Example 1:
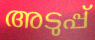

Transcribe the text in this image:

അടുപ്പ്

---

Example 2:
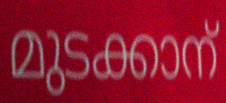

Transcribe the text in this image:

മുടക്കാന്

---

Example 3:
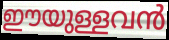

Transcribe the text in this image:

ഈയുള്ളവൻ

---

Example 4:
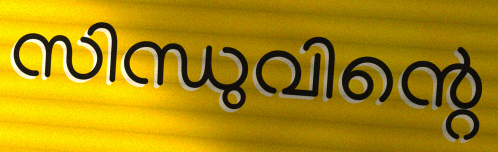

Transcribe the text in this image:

സിന്ധുവിന്റെ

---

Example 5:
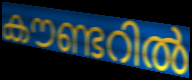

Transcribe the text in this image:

കൗണ്ടറിൽ